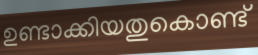
ഉണ്ടാക്കിയതുകൊണ്ട്